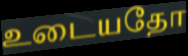
உடையதோ